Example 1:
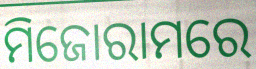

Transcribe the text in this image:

ମିଜୋରାମରେ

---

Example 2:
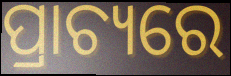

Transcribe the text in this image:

ପ୍ରାଚ୍ୟରେ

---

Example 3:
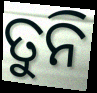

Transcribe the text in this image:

ତୁନି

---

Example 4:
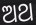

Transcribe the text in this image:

ଅଥ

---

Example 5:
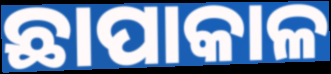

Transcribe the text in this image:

ଛାପାକାଳ